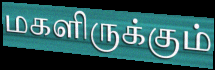
மகளிருக்கும்